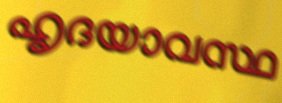
ഹൃദയാവസ്ഥ